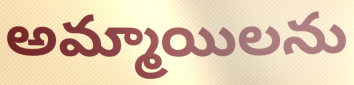
అమ్మాయిలను